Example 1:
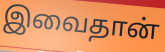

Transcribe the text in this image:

இவைதான்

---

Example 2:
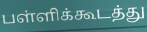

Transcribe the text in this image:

பள்ளிக்கூடத்து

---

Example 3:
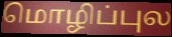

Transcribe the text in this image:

மொழிப்புல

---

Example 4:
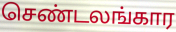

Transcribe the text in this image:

செண்டலங்கார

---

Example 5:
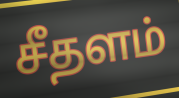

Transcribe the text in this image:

சீதளம்